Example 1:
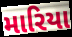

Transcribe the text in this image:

મારિયા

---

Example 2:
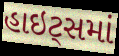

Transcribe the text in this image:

હાઇટ્સમાં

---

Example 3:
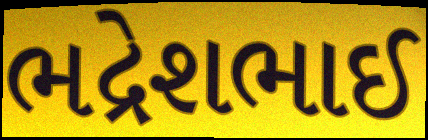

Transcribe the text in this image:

ભદ્રેશભાઈ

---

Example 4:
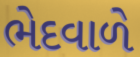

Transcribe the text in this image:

ભેદવાળે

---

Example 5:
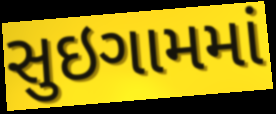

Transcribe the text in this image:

સુઇગામમાં